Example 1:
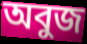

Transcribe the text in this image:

অবুজ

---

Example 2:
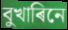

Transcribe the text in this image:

বুখাৰিনে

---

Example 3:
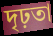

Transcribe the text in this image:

দৃঢ়তা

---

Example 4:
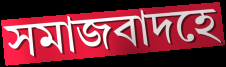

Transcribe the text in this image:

সমাজবাদহে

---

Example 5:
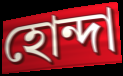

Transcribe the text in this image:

হোন্দা